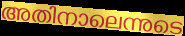
അതിനാലെന്നുടെ